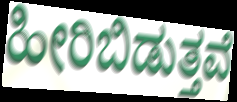
ಹೀರಿಬಿಡುತ್ತವೆ